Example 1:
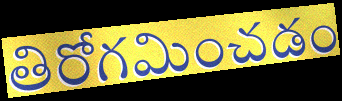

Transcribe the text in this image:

తిరోగమించడం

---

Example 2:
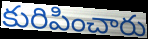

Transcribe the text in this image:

కురిపించారు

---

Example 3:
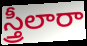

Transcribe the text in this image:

స్త్రీలారా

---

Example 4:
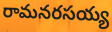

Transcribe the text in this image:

రామనరసయ్య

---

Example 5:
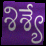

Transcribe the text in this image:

శిశ్యే